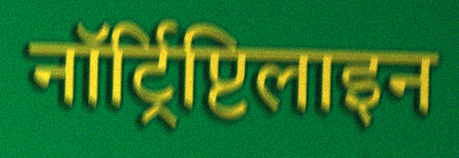
नॉर्ट्रिप्टिलाइन